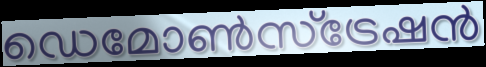
ഡെമോൺസ്ട്രേഷൻ